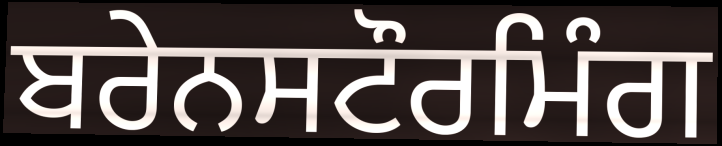
ਬਰੇਨਸਟੌਰਮਿੰਗ